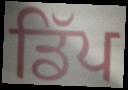
ਡਿੱਪ